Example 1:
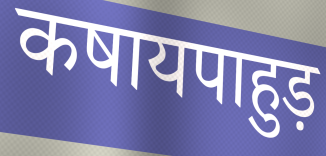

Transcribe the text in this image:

कषायपाहुड़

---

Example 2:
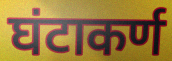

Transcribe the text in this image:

घंटाकर्ण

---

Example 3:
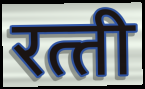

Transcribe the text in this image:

रत्‍ती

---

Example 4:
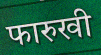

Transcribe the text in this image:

फारुखी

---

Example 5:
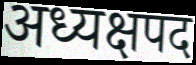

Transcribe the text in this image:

अध्यक्षपद